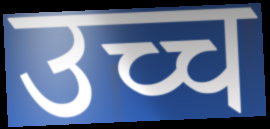
उच्च